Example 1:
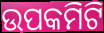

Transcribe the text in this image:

ଉପକମିଟି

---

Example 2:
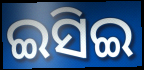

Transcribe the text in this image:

ଇସିଇ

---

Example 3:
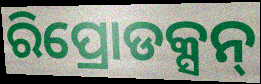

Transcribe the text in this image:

ରିପ୍ରୋଡକ୍ସନ୍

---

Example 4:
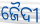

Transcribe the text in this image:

ଜୈଦୀ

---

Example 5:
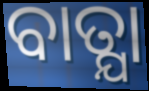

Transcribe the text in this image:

ବାତ୍ଯା